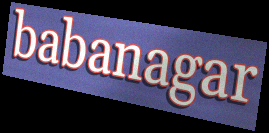
babanagar